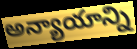
అన్యాయాన్ని